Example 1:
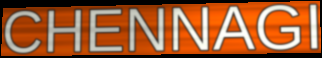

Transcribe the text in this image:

CHENNAGI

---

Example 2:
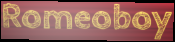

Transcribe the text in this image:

Romeoboy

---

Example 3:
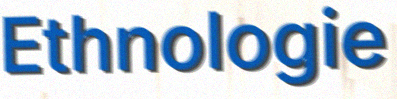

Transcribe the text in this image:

Ethnologie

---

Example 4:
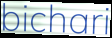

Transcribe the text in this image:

bichari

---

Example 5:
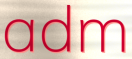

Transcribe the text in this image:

adm